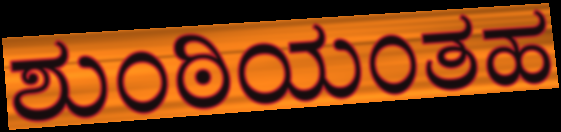
ಶುಂಠಿಯಂತಹ